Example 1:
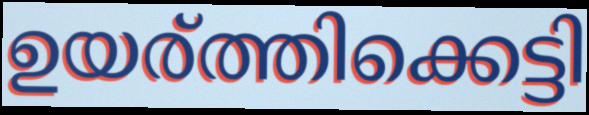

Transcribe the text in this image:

ഉയര്ത്തിക്കെട്ടി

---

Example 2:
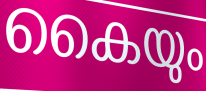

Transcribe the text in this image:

കൈയും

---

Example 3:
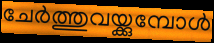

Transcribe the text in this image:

ചേർത്തുവയ്ക്കുമ്പോൾ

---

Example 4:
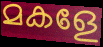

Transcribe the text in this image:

മകളേ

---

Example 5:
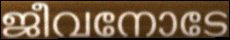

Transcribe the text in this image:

ജീവനോടേ